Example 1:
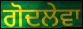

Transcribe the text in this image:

ਗੋਦਲੇਵਾ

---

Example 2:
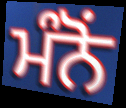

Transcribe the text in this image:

ਮੰਨੋਂ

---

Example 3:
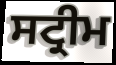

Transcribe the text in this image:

ਸਟ੍ਰੀਮ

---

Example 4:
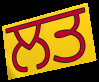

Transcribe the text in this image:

ਲਤ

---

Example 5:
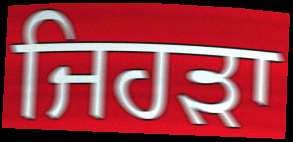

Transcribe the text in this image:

ਜਿਹੜਾ